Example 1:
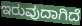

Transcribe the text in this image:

ಇರುವುದಾಗಿದೆ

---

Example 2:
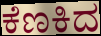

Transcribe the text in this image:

ಕೆಣಕಿದ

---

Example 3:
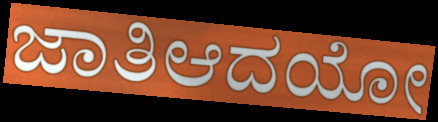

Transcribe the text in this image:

ಜಾತಿಆದಯೋ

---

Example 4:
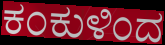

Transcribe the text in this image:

ಕಂಕುಳಿಂದ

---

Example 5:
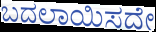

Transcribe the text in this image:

ಬದಲಾಯಿಸದೇ